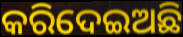
କରିଦେଇଅଛି